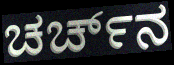
ಚರ್ಚ್‌ನ